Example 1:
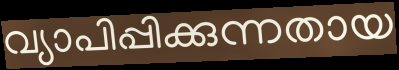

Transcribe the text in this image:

വ്യാപിപ്പിക്കുന്നതായ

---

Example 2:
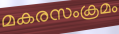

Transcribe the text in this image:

മകരസംക്രമം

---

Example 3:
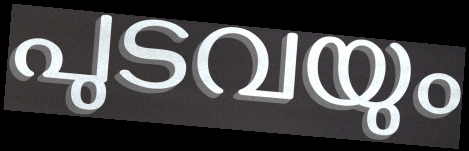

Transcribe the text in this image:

പുടവയും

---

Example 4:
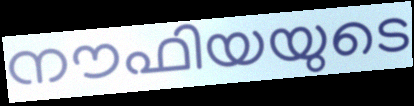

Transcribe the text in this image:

നൗഫിയയുടെ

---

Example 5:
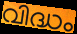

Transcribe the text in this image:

വിദ്ധം